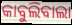
କାବୁଲିବାଲା